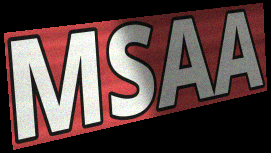
MSAA